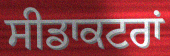
ਸੀਡਾਕਟਰਾਂ